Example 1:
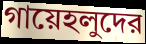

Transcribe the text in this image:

গায়েহলুদের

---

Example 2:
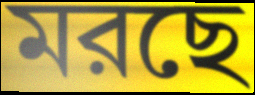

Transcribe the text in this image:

মরছে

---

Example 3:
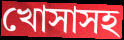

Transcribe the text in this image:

খোসাসহ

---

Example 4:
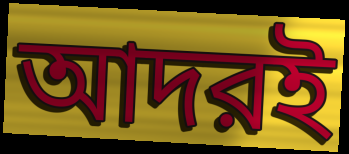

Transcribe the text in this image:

আদরই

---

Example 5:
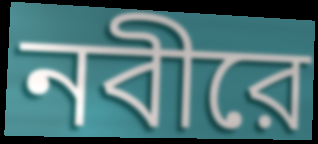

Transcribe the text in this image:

নবীরে